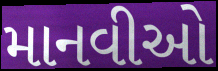
માનવીઓ